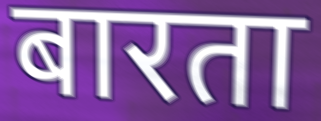
बारता